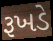
રૂખડે